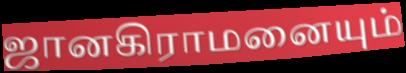
ஜானகிராமனையும்